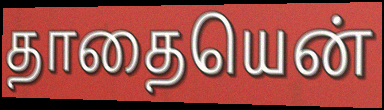
தாதையென்